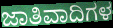
ಜಾತಿವಾದಿಗಳ